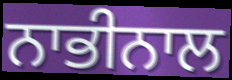
ਨਾਭੀਨਾਲ